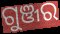
ଗୁଞ୍ଜର